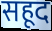
सहूद